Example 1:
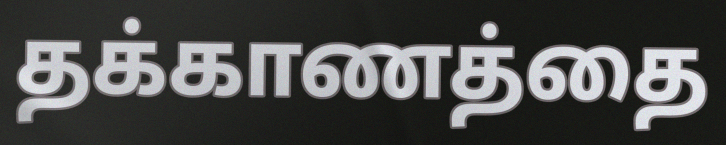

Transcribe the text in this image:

தக்காணத்தை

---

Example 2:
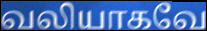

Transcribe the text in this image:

வலியாகவே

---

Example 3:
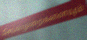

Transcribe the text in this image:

செயல்முறைகளையும்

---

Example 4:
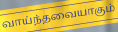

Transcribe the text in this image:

வாய்ந்தவையாகும்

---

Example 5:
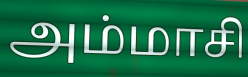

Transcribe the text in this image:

அம்மாசி